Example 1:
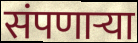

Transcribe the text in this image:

संपणार्‍या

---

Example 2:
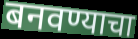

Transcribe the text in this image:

बनवण्याचा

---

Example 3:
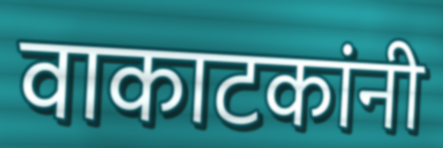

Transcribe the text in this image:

वाकाटकांनी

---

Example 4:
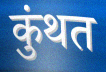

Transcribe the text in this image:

कुंथत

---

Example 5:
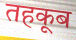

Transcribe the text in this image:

तहकूब